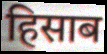
हिसाब